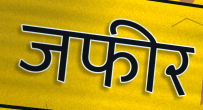
जफीर